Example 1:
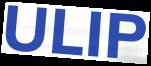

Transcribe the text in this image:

ULIP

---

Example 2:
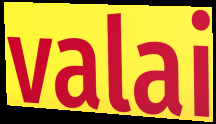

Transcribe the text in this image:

valai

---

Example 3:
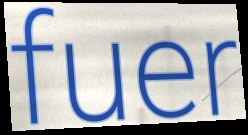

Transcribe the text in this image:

fuer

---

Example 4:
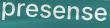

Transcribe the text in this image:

presense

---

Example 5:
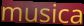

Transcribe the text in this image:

musica